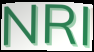
NRI